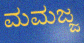
ಮಮಜ್ಜ